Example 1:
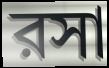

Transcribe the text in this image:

রসা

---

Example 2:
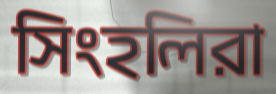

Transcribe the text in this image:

সিংহলিরা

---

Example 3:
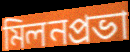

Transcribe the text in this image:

মিলনপ্রভা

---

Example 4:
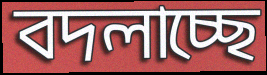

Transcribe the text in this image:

বদলাচ্ছে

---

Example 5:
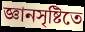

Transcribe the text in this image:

জ্ঞানসৃষ্টিতে